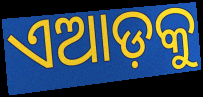
ଏଆଡ଼କୁ